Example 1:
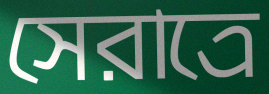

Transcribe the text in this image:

সেরাত্রে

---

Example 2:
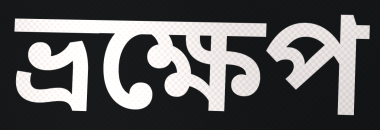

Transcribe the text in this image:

ভ্রক্ষেপ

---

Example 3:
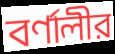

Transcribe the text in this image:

বর্ণালীর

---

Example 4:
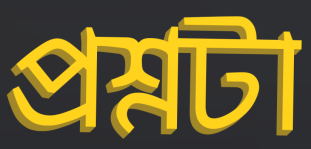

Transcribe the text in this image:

প্রশ্নটা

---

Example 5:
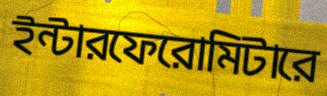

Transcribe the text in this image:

ইন্টারফেরোমিটারে